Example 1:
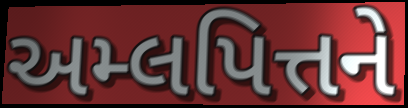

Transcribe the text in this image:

અમ્લપિત્તને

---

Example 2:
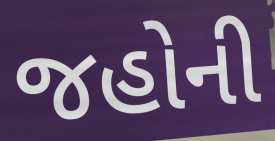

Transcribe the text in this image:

જહોની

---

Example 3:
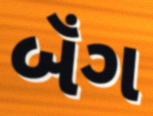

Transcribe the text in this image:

બૅંગ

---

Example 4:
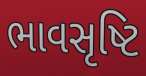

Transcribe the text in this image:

ભાવસૃષ્ટિ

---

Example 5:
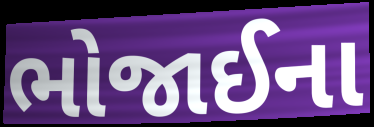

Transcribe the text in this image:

ભોજાઈના